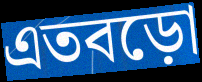
এতবড়ো